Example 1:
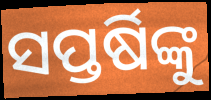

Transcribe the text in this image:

ସପ୍ତର୍ଷିଙ୍କୁ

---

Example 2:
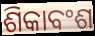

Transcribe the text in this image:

ଶିକାବଂଶ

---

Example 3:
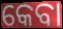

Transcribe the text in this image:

କେବା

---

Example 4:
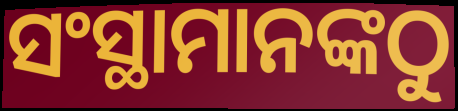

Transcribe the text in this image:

ସଂସ୍ଥାମାନଙ୍କଠୁ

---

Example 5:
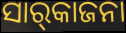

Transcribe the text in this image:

ସାର୍‌କାଜନା